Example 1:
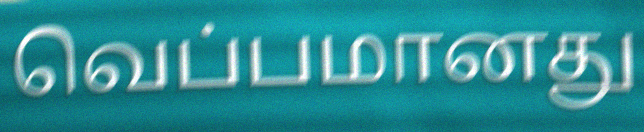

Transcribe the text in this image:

வெப்பமானது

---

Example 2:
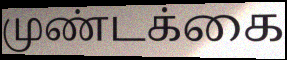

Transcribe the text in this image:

முண்டக்கை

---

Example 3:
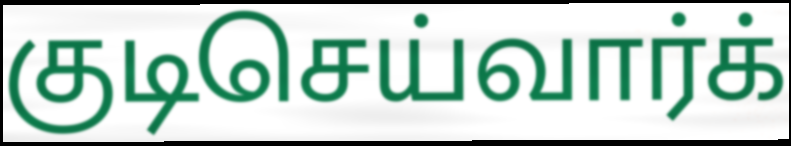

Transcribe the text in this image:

குடிசெய்வார்க்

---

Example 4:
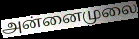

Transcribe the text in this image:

அன்னைமுலை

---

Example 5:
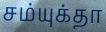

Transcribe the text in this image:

சம்யுக்தா